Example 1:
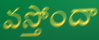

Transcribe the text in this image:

వస్తోందా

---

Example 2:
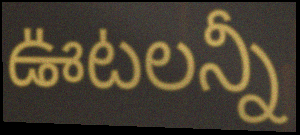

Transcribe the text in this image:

ఊటలన్నీ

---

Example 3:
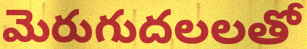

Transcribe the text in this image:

మెరుగుదలలతో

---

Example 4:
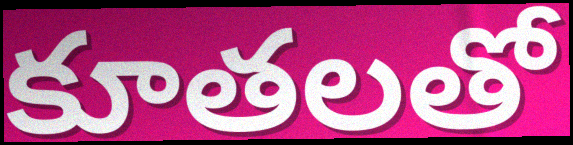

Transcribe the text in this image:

కూతలతో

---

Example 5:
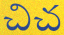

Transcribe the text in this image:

చిచ